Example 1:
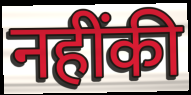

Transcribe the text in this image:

नहींकी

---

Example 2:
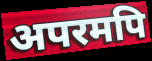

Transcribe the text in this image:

अपरमपि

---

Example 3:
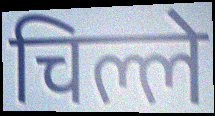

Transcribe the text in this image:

चिल्ले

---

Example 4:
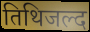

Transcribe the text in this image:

तिथिजल्द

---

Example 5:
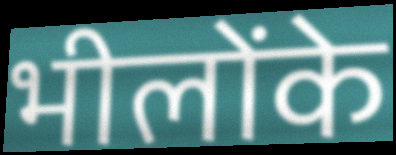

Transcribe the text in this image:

भीलोंके